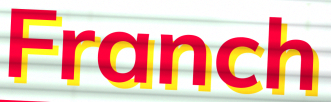
Franch